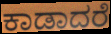
ಕಾಡಾದರೆ